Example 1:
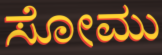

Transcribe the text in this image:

ಸೋಮು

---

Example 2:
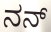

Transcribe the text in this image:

ನನ್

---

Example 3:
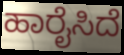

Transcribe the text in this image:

ಹಾರೈಸಿದೆ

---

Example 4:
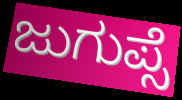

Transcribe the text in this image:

ಜುಗುಪ್ಸೆ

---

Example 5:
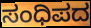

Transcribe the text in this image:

ಸಂಧಿಪದ